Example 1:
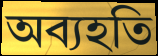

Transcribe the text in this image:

অব্যহতি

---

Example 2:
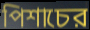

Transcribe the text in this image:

পিশাচের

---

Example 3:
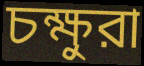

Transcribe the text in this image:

চক্ষুরা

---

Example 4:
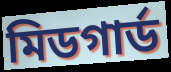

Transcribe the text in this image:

মিডগার্ড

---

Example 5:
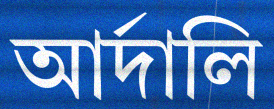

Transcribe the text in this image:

আর্দালি